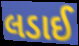
લડાઈ